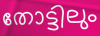
തോട്ടിലും